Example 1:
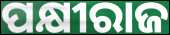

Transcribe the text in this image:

ପକ୍ଷୀରାଜ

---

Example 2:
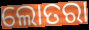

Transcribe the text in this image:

ଲୋତରା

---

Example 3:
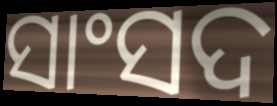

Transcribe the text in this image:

ସାଂସଦ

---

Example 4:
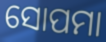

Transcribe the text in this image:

ସୋପମା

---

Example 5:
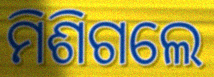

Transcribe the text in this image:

ମିଶିଗଲେ